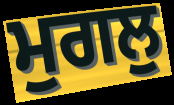
ਮੁਗਲੁ